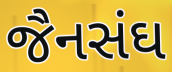
જૈનસંઘ